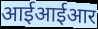
आईआईआर